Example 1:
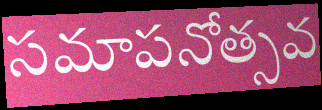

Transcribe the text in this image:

సమాపనోత్సవ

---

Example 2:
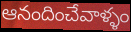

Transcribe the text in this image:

ఆనందించేవాళ్ళం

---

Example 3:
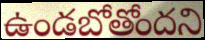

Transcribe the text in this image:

ఉండబోతోందని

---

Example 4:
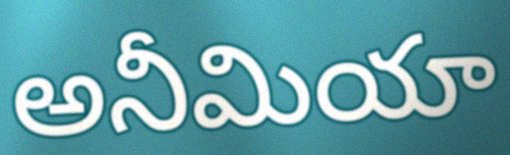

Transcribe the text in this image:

అనీమియా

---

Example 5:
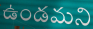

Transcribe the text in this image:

ఉండమని